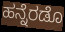
ಹನ್ನೆರಡೊ